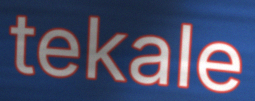
tekale